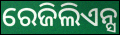
ରେଜିଲିଏନ୍ସ